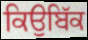
ਕਿਉਬਿੱਕ